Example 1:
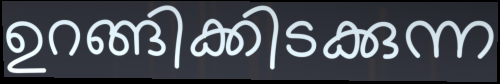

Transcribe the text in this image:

ഉറങ്ങിക്കിടക്കുന്ന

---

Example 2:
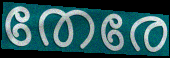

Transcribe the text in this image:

തേരേ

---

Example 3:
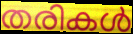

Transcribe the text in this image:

തരികൾ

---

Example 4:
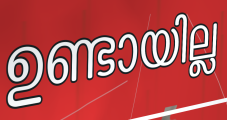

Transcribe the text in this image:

ഉണ്ടായില്ല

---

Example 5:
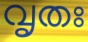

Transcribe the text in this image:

വൃതഃ